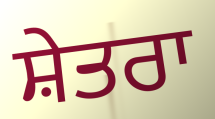
ਸ਼ੇਤਰਾ